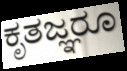
ಕೃತಜ್ಞರೂ